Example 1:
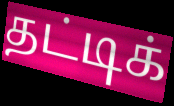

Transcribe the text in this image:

தட்டிக்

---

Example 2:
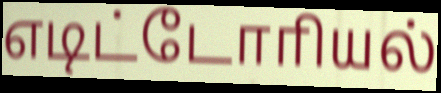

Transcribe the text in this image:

எடிட்டோரியல்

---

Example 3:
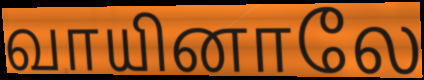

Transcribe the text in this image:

வாயினாலே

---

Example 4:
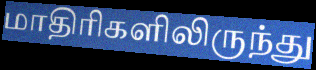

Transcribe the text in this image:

மாதிரிகளிலிருந்து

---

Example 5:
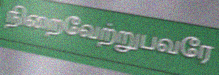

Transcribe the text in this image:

நிறைவேற்றுபவரே